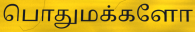
பொதுமக்களோ